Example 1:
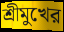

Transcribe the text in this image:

শ্রীমুখের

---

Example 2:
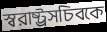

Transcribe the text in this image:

স্বরাষ্ট্রসচিবকে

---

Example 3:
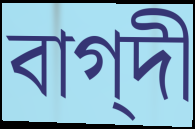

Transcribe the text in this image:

বাগ্‌দী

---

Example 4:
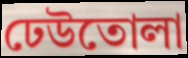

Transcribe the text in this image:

ঢেউতোলা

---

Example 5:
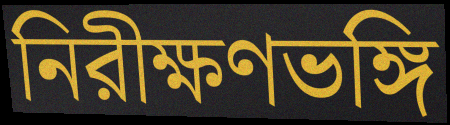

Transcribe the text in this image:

নিরীক্ষণভঙ্গি